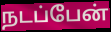
நடப்பேன்